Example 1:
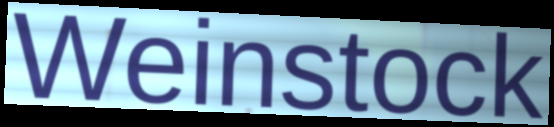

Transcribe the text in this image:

Weinstock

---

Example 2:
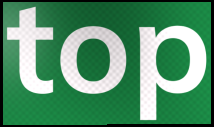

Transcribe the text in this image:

top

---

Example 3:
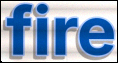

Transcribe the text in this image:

fire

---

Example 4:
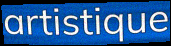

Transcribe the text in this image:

artistique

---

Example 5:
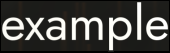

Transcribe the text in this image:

example